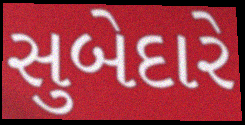
સુબેદારે